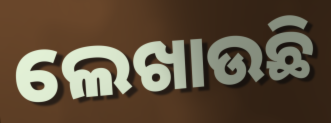
ଲେଖାଉଛି